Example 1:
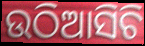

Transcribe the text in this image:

ଉଠିଆସିଚି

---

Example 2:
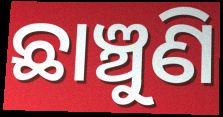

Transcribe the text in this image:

ଛାଞ୍ଚୁଣି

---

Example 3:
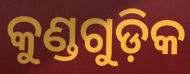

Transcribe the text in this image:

କୁଣ୍ଡଗୁଡ଼ିକ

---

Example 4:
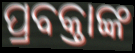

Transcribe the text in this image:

ପ୍ରବକ୍ତାଙ୍କ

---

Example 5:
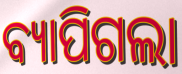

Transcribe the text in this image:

ବ୍ୟାପିଗଲା